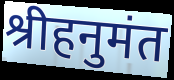
श्रीहनुमंत